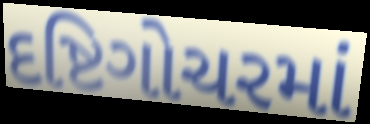
દષ્ટિગોચરમાં